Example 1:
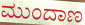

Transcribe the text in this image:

ಮುಂದಾಣ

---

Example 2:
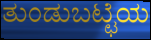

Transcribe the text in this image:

ತುಂಡುಬಟ್ಟೆಯ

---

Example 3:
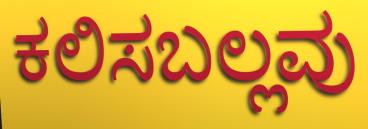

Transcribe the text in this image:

ಕಲಿಸಬಲ್ಲವು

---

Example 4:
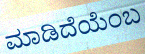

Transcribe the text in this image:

ಮಾಡಿದೆಯೆಂಬ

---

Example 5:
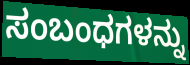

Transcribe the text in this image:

ಸಂಬಂಧಗಳನ್ನು